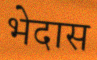
भेदास